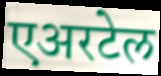
एअरटेल